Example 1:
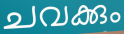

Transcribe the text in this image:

ചവക്കും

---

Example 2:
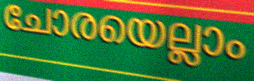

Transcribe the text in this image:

ചോരയെല്ലാം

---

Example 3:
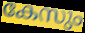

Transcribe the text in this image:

കേസും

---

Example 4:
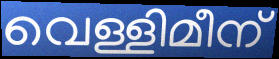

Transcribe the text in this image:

വെള്ളിമീന്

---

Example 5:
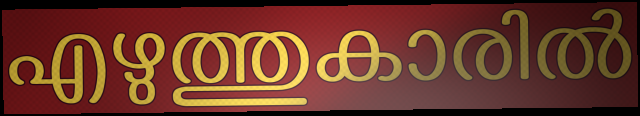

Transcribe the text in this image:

എഴുത്തുകാരിൽ